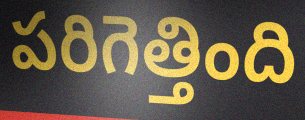
పరిగెత్తింది